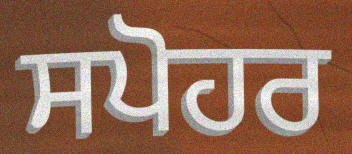
ਸਪੋਹਰ